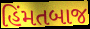
હિંમતબાજ